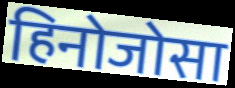
हिनोजोसा